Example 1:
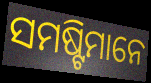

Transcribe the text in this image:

ସମଷ୍ଟିମାନେ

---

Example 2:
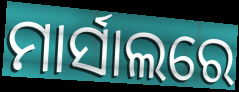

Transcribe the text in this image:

ମାର୍ସାଲରେ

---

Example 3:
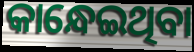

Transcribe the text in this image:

କାନ୍ଧେଇଥିବା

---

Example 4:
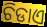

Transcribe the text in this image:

ଚିଡାଏ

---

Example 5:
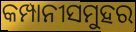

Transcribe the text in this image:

କମ୍ପାନୀସମୁହର